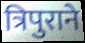
त्रिपुराने